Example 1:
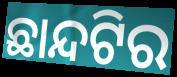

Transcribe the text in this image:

ଛାନ୍ଦଟିର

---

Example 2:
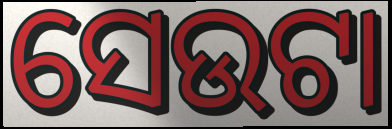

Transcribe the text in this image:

ସେଉଟା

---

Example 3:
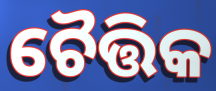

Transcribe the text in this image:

ଚୈତ୍ତିକ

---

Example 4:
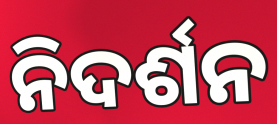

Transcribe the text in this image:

ନିଦର୍ଶନ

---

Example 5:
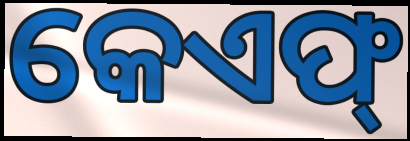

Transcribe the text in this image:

କେଏଫ୍